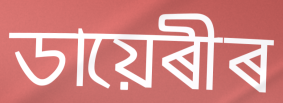
ডায়েৰীৰ